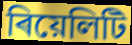
ৰিয়েলিটি